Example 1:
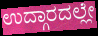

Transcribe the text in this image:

ಉದ್ಗಾರದಲ್ಲೇ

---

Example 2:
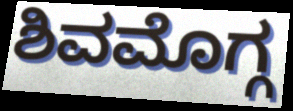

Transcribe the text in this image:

ಶಿವಮೊಗ್ಗ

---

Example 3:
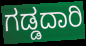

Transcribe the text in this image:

ಗಡ್ಡದಾರಿ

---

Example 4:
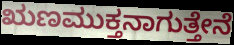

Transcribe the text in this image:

ಋಣಮುಕ್ತನಾಗುತ್ತೇನೆ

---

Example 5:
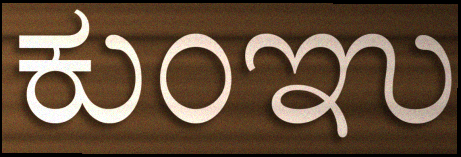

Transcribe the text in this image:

ಕುಂಞು